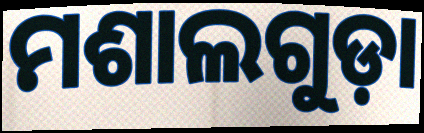
ମଶାଲଗୁଡ଼ା